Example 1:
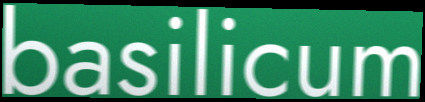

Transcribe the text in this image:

basilicum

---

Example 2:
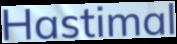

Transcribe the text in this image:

Hastimal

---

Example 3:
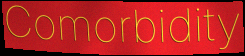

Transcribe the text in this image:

Comorbidity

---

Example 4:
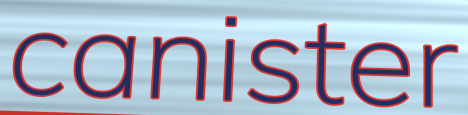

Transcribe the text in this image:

canister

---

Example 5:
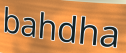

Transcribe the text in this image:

bahdha